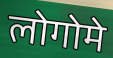
लोगोमे